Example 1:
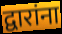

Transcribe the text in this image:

द्वारांना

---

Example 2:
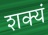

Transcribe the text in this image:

शक्यं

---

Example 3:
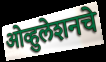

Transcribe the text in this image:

ओव्हुलेशनचे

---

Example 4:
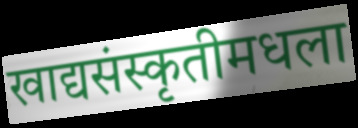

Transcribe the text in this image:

खाद्यसंस्कृतीमधला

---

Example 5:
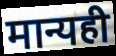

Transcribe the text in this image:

मान्यही